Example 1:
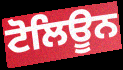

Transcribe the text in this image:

ਟੋਲਿਊਨ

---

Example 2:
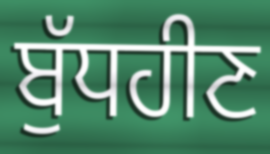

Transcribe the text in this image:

ਬੁੱਧਹੀਣ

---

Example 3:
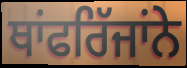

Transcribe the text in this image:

ਥਾਂਫਰਿੱਜਾਂਨੇ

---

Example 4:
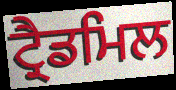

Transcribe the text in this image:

ਟ੍ਰੈਡਮਿਲ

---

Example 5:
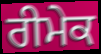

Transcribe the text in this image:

ਰੀਮੇਕ